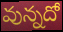
వున్నదో